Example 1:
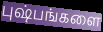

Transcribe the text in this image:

புஷ்பங்களை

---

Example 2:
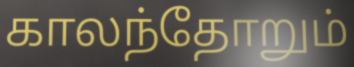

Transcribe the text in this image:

காலந்தோறும்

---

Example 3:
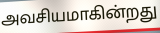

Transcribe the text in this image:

அவசியமாகின்றது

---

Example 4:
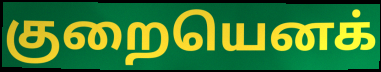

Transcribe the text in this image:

குறையெனக்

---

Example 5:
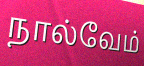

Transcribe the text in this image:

நால்வேம்